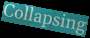
Collapsing